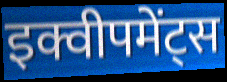
इक्वीपमेंट्स